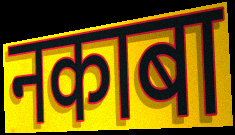
नकाबा